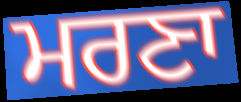
ਮਰਣਾ